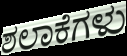
ಶಲಾಕೆಗಳು